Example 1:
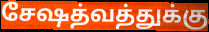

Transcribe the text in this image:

சேஷத்வத்துக்கு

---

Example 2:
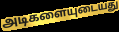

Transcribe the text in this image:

அடிகளையுடையது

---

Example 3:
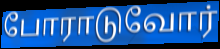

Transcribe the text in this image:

போராடுவோர்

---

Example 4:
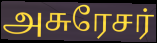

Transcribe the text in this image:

அசுரேசர்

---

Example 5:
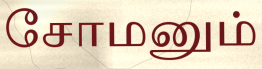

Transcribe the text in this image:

சோமனும்